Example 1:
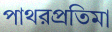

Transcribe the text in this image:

পাথরপ্রতিমা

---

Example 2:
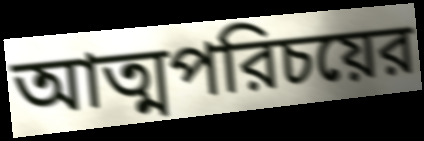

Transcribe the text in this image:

আত্মপরিচয়ের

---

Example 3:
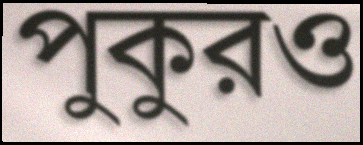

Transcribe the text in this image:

পুকুরও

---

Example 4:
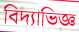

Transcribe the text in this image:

বিদ্যাভিজ্ঞ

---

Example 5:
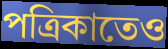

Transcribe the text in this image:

পত্রিকাতেও